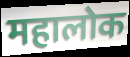
महालोक